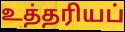
உத்தரியப்